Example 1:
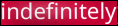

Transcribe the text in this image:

indefinitely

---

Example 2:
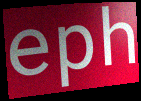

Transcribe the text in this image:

eph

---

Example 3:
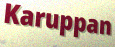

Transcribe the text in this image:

Karuppan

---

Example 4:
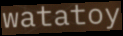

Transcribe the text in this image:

watatoy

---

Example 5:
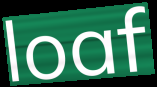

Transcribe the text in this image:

loaf